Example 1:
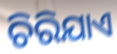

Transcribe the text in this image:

ଚିରିଯାଏ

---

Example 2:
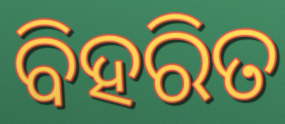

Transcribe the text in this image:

ବିହରିତ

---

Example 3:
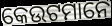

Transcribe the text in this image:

କେଉଟମାନେ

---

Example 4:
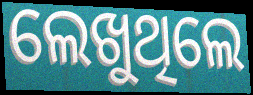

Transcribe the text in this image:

ଲେଖୁଥିଲେ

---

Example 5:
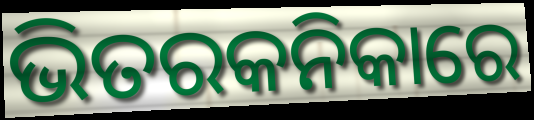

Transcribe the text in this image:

ଭିତରକନିକାରେ